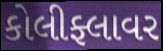
કોલીફ્લાવર